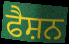
ਫੈਸ਼ਨ